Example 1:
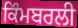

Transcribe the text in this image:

ਕਿੰਮਬਰਲੀ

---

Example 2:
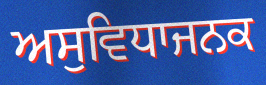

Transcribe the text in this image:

ਅਸੁਵਿਧਾਜਨਕ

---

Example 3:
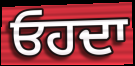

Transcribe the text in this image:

ਓਹਦਾ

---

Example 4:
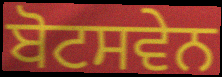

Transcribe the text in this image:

ਬੋਟਸਵੇਨ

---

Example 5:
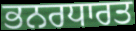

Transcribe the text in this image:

ਭਨਰਧਾਰਤ